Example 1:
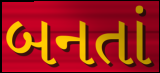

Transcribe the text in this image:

બનતાં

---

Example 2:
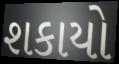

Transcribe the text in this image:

શકાયો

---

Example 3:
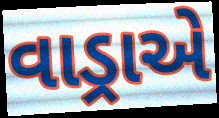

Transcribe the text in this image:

વાડ્રાએ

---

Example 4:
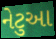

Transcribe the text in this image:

નેટુઆ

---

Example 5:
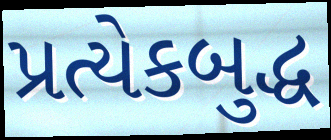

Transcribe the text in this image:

પ્રત્યેકબુદ્ધ